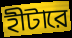
হীটারে